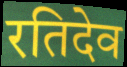
रतिदेव